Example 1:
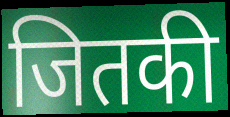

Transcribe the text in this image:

जितकी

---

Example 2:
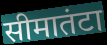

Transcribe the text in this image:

सीमातंटा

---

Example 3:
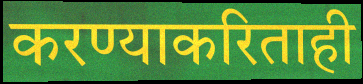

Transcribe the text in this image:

करण्याकरिताही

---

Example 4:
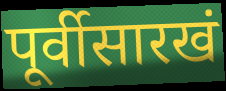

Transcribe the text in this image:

पूर्वीसारखं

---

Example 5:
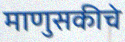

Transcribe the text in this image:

माणुसकीचे